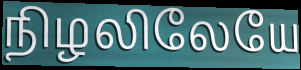
நிழலிலேயே